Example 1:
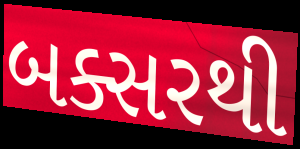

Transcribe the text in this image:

બક્સરથી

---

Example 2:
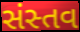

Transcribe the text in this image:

સંસ્તવ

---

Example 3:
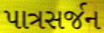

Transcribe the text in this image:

પાત્રસર્જન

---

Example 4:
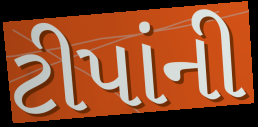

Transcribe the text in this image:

ટીપાંની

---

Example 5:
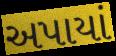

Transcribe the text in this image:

અપાયાં